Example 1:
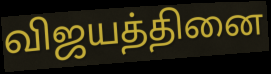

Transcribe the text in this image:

விஜயத்தினை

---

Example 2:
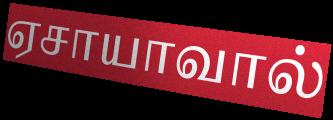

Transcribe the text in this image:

ஏசாயாவால்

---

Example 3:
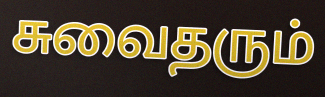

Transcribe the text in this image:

சுவைதரும்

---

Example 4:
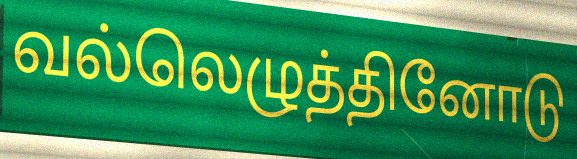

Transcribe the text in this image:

வல்லெழுத்தினோடு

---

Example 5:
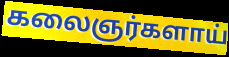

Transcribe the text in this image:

கலைஞர்களாய்